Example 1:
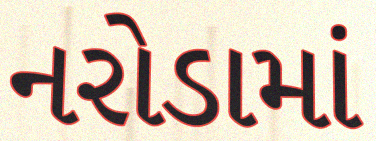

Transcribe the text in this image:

નરોડામાં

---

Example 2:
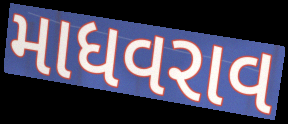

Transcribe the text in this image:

માધવરાવ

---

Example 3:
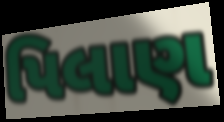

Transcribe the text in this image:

પિલાણ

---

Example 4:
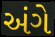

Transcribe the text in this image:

અંગે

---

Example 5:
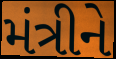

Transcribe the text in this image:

મંત્રીને